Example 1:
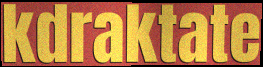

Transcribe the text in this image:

kdraktate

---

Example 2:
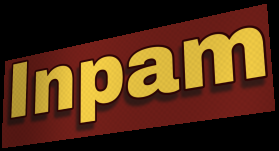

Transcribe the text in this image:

Inpam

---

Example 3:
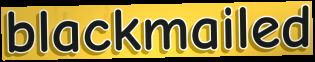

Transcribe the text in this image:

blackmailed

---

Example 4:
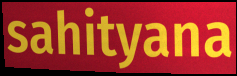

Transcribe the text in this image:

sahityana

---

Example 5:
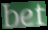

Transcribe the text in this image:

bet